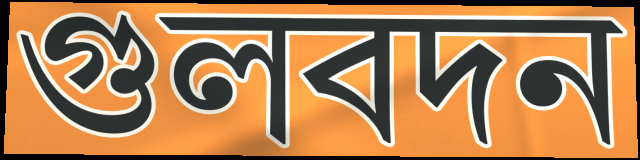
গুলবদন